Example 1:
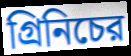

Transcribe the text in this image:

গ্রিনিচের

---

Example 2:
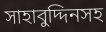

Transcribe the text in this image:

সাহাবুদ্দিনসহ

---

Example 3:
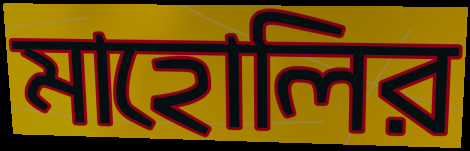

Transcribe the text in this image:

মাহোলির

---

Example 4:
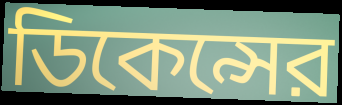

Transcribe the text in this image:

ডিকেন্সের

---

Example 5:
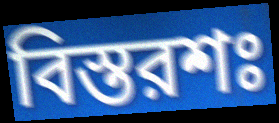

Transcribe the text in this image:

বিস্তরশঃ